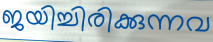
ജയിച്ചിരിക്കുന്നവ